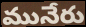
మునేరు